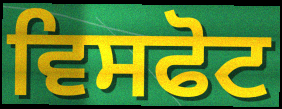
ਵਿਸਫੋਟ